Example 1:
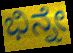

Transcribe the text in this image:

ಭಿನ್ನೇ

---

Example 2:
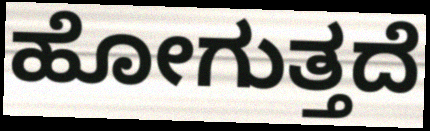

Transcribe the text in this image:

ಹೋಗುತ್ತದೆ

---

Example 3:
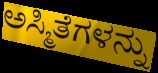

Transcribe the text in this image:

ಅಸ್ಮಿತೆಗಳನ್ನು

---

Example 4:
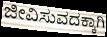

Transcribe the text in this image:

ಜೀವಿಸುವದಕ್ಕಾಗಿ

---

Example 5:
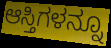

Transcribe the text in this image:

ಆಸ್ತಿಗಳನ್ನೂ